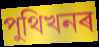
পুথিখনৰ